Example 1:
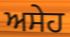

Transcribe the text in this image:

ਅਸੇਹ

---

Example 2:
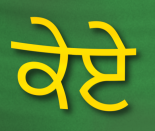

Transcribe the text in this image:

ਕੇਏ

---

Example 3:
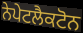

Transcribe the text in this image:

ਨੇਪੇਟਲੈਕਟੋਨ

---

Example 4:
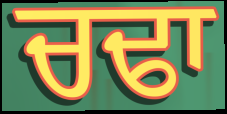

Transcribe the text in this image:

ਚਢਾ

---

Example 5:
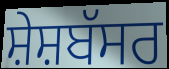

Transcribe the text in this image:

ਸ਼ੇਸ਼ਬੱਸਰ